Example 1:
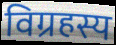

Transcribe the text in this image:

विग्रहस्य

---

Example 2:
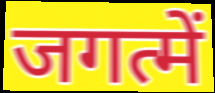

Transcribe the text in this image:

जगत्में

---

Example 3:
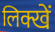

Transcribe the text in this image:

लिक्खें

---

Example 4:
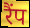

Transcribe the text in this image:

रैंप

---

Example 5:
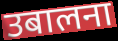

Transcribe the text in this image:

उबालना